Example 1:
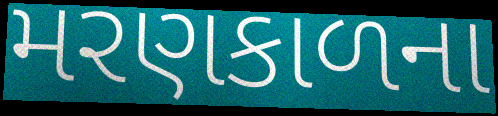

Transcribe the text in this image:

મરણકાળના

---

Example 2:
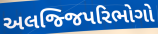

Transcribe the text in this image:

અલજ્જિપરિભોગો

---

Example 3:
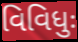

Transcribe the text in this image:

વિવિધુઃ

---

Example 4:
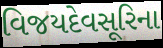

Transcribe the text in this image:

વિજયદેવસૂરિના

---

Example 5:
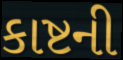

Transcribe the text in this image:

કાષ્ટની